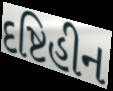
દષ્ટિહીન